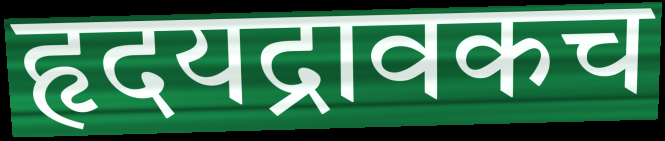
हृदयद्रावकच